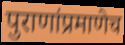
पुराणांप्रमाणेच